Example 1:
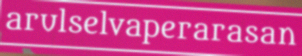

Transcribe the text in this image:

arulselvaperarasan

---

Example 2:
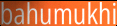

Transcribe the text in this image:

bahumukhi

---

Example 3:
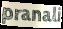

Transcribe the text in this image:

pranali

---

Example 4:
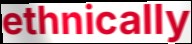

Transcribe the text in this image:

ethnically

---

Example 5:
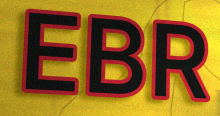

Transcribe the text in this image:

EBR